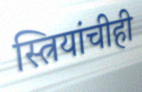
स्त्रियांचीही